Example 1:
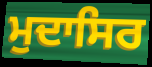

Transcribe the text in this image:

ਮੁਦਾਸਿਰ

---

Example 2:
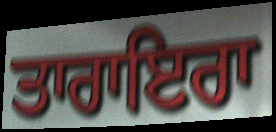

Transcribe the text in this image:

ਤਾਰਾਇਰਾ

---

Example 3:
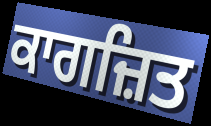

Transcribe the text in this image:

ਕਾਗਜ਼ਿਤ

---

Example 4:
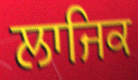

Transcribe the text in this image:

ਲਾਜਿਕ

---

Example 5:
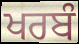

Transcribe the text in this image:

ਖਰਬੰ